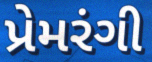
પ્રેમરંગી